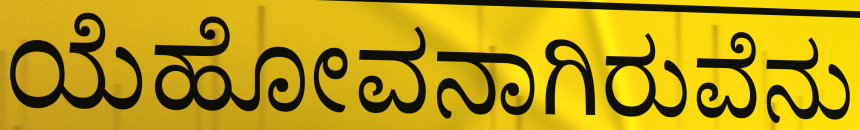
ಯೆಹೋವನಾಗಿರುವೆನು